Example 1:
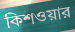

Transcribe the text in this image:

কিশওয়ার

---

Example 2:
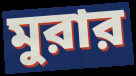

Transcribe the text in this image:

মুরার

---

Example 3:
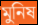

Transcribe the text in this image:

মুনিষ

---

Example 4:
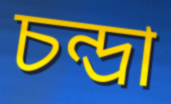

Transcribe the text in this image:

চন্দ্রা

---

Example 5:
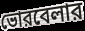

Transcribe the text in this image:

ভোরবেলার